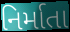
નિર્માતા